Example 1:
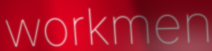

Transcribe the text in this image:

workmen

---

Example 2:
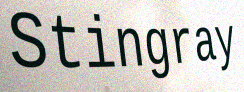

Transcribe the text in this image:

Stingray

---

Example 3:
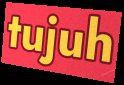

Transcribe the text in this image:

tujuh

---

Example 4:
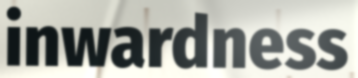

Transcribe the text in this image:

inwardness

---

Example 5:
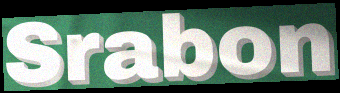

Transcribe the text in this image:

Srabon